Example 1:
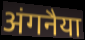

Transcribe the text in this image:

अंगनैया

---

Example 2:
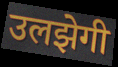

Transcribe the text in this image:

उलझेगी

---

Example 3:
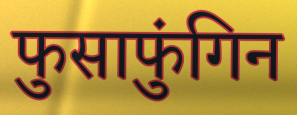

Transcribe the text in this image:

फुसाफुंगिन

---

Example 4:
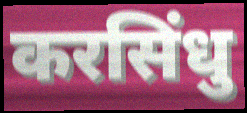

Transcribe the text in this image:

करसिंधु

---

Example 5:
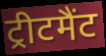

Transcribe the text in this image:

ट्रीटमैंट